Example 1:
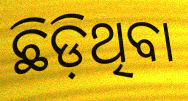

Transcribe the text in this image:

ଛିଡ଼ିଥିବା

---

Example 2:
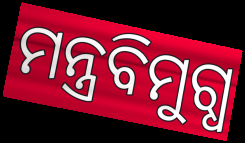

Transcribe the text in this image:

ମନ୍ତ୍ରବିମୁଗ୍ଧ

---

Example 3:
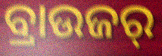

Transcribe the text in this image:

ବ୍ରାଉଜର୍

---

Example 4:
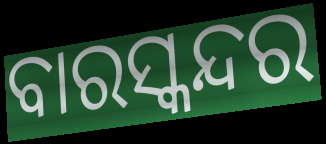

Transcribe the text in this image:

ବାରସ୍କନ୍ଦର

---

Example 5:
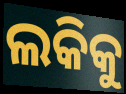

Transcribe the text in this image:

ଲକିକୁ